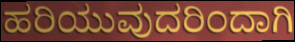
ಹರಿಯುವುದರಿಂದಾಗಿ